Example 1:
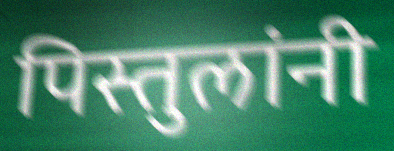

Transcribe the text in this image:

पिस्तुलांनी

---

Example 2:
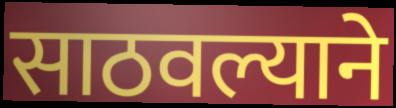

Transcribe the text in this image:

साठवल्याने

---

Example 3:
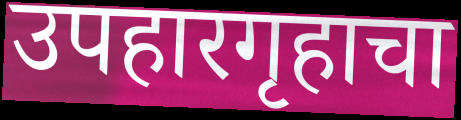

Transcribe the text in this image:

उपहारगृहाचा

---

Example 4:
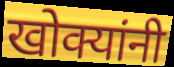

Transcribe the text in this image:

खोक्यांनी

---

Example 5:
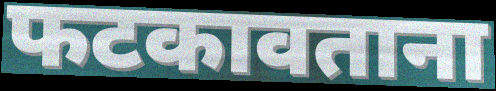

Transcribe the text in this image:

फटकावताना